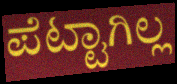
ಪೆಟ್ಟಾಗಿಲ್ಲ